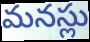
మనస్లు